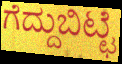
ಗೆದ್ದುಬಿಟ್ಟೆ